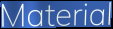
Material